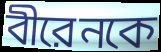
বীরেনকে